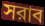
সরাব